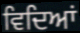
ਵਿਦਿਆਂ